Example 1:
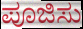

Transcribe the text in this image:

ಪೂಜಿಸು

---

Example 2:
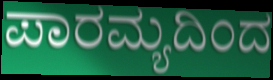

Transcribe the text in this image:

ಪಾರಮ್ಯದಿಂದ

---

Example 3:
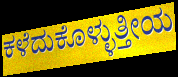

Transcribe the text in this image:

ಕಳೆದುಕೊಳ್ಳುತ್ತೀಯ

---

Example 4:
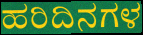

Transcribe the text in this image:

ಹರಿದಿನಗಳ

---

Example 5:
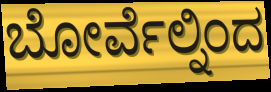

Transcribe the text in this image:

ಬೋರ್ವೆಲ್ನಿಂದ